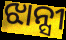
ଝାନ୍ସୀ